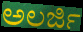
ಅಲರ್ಜಿ